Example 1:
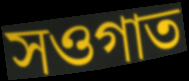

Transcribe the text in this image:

সওগাত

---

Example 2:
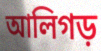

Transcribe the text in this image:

আলিগড়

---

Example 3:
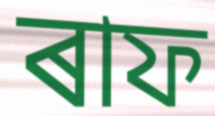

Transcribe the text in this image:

ৰাফ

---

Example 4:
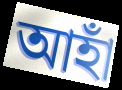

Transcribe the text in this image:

আহাঁ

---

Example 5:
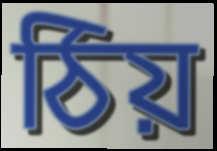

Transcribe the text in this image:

ঠিয়